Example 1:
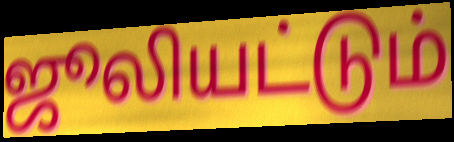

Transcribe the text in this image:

ஜூலியட்டும்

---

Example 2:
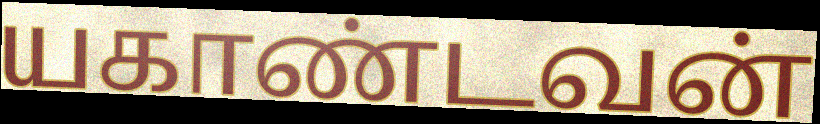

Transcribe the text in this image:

யகாண்டவன்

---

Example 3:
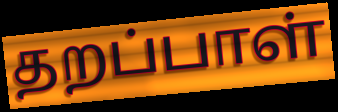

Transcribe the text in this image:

தறப்பாள்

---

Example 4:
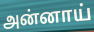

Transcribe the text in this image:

அன்னாய்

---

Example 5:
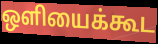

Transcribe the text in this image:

ஒளியைக்கூட